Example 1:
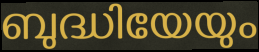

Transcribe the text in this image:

ബുദ്ധിയേയും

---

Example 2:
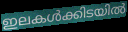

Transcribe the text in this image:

ഇലകൾക്കിടയിൽ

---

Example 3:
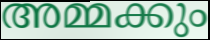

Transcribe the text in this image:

അമ്മക്കും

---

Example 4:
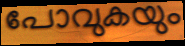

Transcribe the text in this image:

പോവുകയും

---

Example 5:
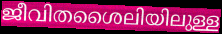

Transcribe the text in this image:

ജീവിതശൈലിയിലുള്ള